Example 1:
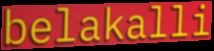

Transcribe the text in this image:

belakalli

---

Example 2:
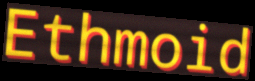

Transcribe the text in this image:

Ethmoid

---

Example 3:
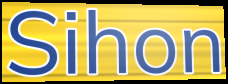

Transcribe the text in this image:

Sihon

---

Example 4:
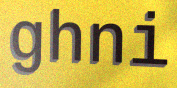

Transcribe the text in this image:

ghni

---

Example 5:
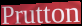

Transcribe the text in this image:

Prutton